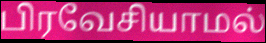
பிரவேசியாமல்